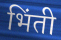
भिंती